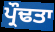
ਪ੍ਰੌਢਤਾ